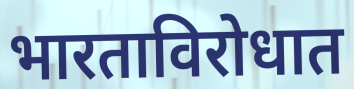
भारताविरोधात